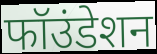
फॉउंडेशन